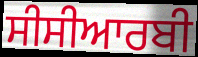
ਸੀਸੀਆਰਬੀ